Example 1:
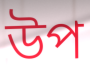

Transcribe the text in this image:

উপ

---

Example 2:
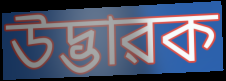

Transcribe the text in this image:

উদ্ভাৱক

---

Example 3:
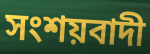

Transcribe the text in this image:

সংশয়বাদী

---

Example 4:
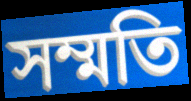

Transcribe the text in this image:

সম্মতি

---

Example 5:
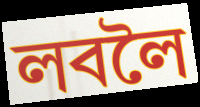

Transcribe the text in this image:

লবলৈ